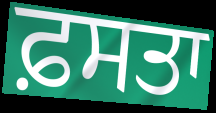
ਫ਼ਸਤਾ